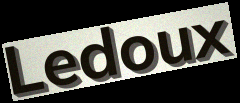
Ledoux